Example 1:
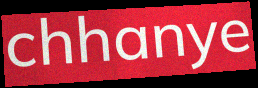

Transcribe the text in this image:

chhanye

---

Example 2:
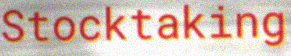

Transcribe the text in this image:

Stocktaking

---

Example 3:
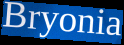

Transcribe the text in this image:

Bryonia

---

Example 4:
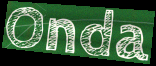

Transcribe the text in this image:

Onda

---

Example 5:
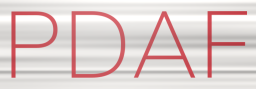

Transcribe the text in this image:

PDAF